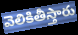
వెలికితీస్తారు